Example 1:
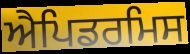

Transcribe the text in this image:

ਐਪਿਡਰਮਿਸ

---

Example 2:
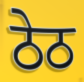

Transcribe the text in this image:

ਠੇਠ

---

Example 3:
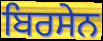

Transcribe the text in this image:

ਬਿਰਸੇਨ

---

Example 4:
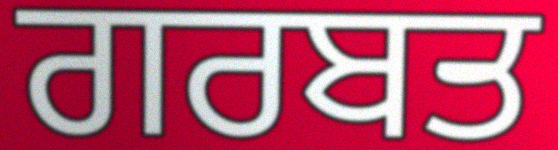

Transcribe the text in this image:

ਗਰਬਤ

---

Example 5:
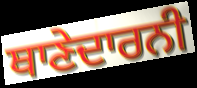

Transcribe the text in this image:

ਥਾਣੇਦਾਰਨੀ